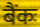
बैंकः